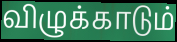
விழுக்காடும்